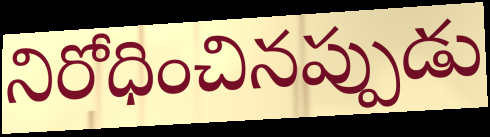
నిరోధించినప్పుడు